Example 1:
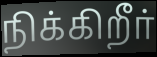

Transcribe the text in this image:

நிக்கிறீர்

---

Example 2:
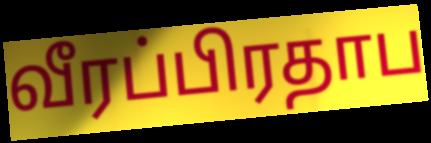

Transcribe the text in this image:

வீரப்பிரதாப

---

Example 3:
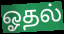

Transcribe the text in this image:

ஓதல்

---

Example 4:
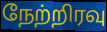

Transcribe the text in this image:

நேற்றிரவு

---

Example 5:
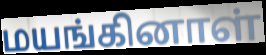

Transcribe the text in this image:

மயங்கினாள்